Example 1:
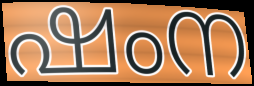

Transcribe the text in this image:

ഷംന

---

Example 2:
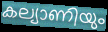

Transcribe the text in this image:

കല്യാണിയും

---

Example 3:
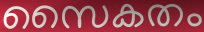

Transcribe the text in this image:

സൈകതം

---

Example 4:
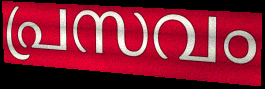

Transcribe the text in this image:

പ്രസവം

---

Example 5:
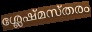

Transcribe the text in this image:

ശ്ലേഷ്മസ്തരം